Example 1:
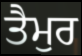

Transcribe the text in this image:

ਤੈਮੁਰ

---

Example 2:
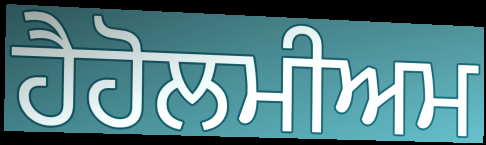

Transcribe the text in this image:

ਹੈਹੋਲਮੀਅਮ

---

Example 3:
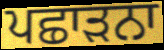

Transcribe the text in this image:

ਪਛਾੜਨਾ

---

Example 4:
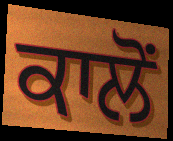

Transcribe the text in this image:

ਕਾਲੋਂ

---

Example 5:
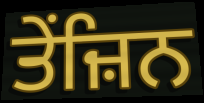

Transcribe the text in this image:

ਤੇਂਜ਼ਿਨ